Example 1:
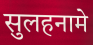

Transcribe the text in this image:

सुलहनामे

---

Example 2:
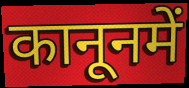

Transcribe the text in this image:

कानूनमें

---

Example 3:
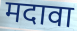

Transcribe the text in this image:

मदावा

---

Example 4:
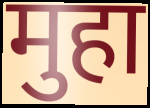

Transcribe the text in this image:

मुहा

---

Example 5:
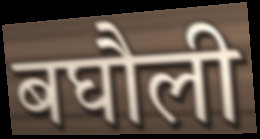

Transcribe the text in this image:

बघौली